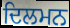
ਦਿਲਮਨ